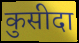
कुसीदा